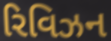
રિવિઝન